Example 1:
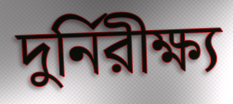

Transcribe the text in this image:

দুর্নিরীক্ষ্য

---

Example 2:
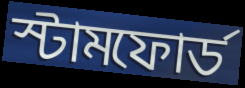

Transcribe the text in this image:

স্টামফোর্ড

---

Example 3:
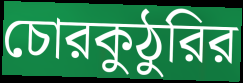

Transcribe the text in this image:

চোরকুঠুরির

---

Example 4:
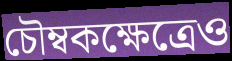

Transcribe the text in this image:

চৌম্বকক্ষেত্রেও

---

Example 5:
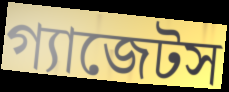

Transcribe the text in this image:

গ্যাজেটস